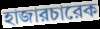
হাজারচারেক